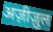
अज़ीज़ुल